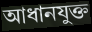
আধানযুক্ত